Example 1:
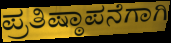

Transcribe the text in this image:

ಪ್ರತಿಷ್ಠಾಪನೆಗಾಗಿ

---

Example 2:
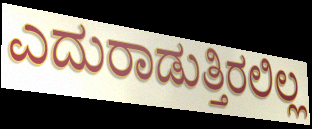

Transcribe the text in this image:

ಎದುರಾಡುತ್ತಿರಲಿಲ್ಲ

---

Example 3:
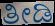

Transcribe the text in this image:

ತೀಡಿ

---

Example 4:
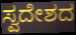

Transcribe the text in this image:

ಸ್ವದೇಶದ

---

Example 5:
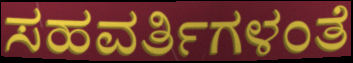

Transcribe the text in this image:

ಸಹವರ್ತಿಗಳಂತೆ